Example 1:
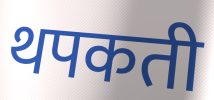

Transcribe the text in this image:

थपकती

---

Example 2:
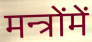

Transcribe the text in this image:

मन्त्रोंमें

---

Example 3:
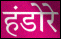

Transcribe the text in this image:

हंडोरे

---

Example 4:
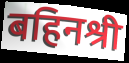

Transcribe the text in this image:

बहिनश्री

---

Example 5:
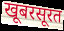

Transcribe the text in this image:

खूबरसूरत